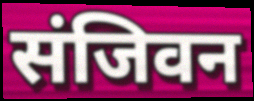
संजिवन